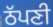
ਠੱਪਣੀ